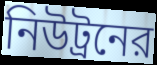
নিউট্রনের